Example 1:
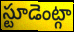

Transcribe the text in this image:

స్టూడెంట్గా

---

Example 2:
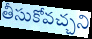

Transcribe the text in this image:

తీసుకోవచ్చని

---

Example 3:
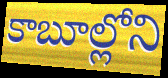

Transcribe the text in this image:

కాబూల్లోని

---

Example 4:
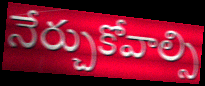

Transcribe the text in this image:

నేర్చుకోవాల్సి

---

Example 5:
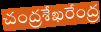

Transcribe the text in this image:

చంద్రశేఖరేంద్ర